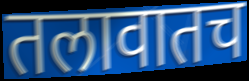
तलावातच